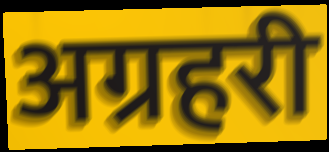
अग्रहरी